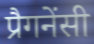
प्रैगनेंसी